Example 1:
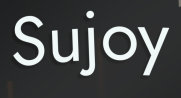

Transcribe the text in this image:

Sujoy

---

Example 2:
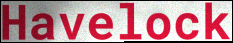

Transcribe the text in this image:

Havelock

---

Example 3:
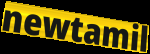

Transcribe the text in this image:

newtamil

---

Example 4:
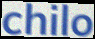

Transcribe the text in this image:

chilo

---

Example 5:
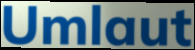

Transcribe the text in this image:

Umlaut